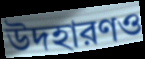
উদহারণও